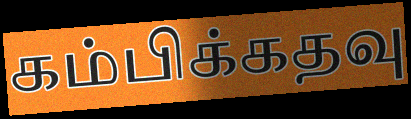
கம்பிக்கதவு